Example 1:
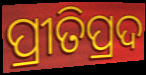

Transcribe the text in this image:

ପ୍ରୀତିପ୍ରଦ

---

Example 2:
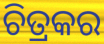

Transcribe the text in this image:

ଚିତ୍ରକର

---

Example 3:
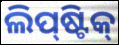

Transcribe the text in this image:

ଲିପ୍‌ଷ୍ଟିକ୍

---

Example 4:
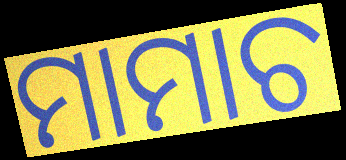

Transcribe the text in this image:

ମାମାଚ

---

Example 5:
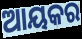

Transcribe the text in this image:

ଆୟକର